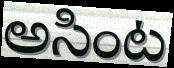
అసింట